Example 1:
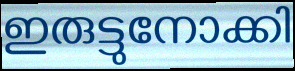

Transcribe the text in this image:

ഇരുട്ടുനോക്കി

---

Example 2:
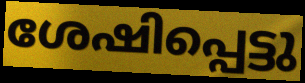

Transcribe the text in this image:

ശേഷിപ്പെട്ടു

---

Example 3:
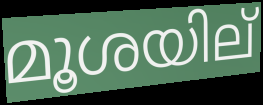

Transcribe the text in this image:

മൂശയില്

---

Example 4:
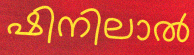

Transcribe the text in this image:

ഷിനിലാൽ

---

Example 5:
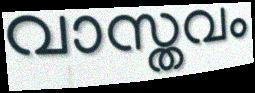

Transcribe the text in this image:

വാസ്തവം